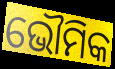
ଭୌମିକ